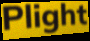
Plight